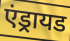
एंड्रायड